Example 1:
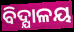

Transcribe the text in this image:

ବିଦ୍ଯାଳୟ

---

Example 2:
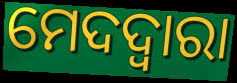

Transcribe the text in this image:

ମେଦଦ୍ଵାରା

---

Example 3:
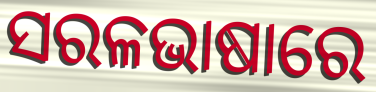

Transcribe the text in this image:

ସରଳଭାଷାରେ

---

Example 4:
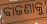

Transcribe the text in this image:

ବାଜଣାକୁ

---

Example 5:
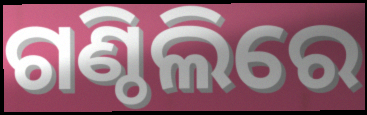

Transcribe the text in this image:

ଗଣ୍ଠିଲିରେ